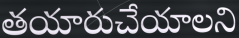
తయారుచేయాలని